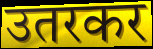
उतरकर